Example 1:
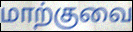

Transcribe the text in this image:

மாற்குவை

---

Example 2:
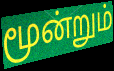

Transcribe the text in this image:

மூன்றும்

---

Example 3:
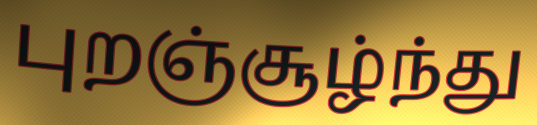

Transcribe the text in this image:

புறஞ்சூழ்ந்து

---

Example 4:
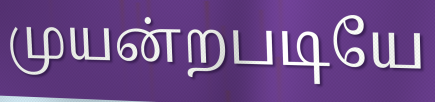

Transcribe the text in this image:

முயன்றபடியே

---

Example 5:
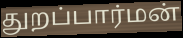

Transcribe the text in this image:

துறப்பார்மன்